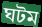
ঘটম